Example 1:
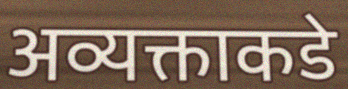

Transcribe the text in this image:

अव्यक्ताकडे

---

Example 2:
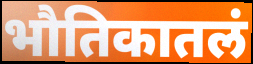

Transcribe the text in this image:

भौतिकातलं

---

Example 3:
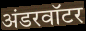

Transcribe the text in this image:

अंडरवॉटर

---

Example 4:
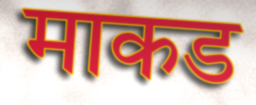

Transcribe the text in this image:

माकड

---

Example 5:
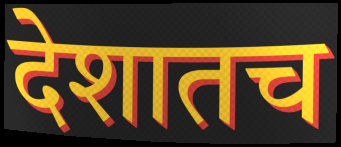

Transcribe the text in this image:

देशातच